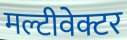
मल्टीवेक्टर